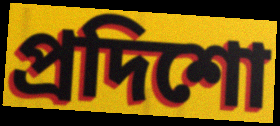
প্রদিশো